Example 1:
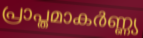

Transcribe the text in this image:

പ്രാപ്തമാകർണ്ണ്യ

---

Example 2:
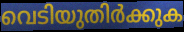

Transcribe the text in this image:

വെടിയുതിർക്കുക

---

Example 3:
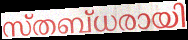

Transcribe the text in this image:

സ്തബ്ധരായി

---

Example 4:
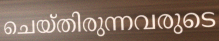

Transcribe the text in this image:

ചെയ്തിരുന്നവരുടെ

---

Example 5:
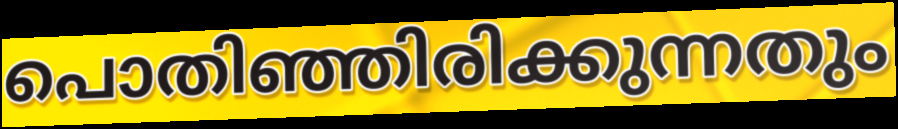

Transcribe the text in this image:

പൊതിഞ്ഞിരിക്കുന്നതും